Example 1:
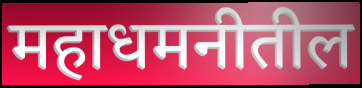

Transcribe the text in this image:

महाधमनीतील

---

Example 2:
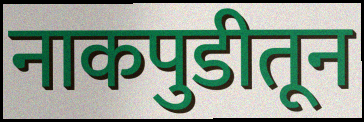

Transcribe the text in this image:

नाकपुडीतून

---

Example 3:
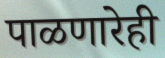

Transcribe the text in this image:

पाळणारेही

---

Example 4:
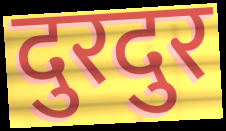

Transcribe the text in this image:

दुरदुर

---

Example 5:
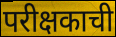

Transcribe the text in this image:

परीक्षकाची